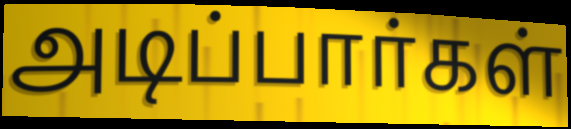
அடிப்பார்கள்